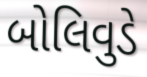
બોલિવુડે